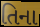
તિના